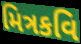
મિત્રકવિ